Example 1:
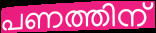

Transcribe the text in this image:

പണത്തിന്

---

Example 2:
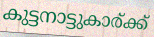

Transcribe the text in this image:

കുട്ടനാട്ടുകാര്ക്ക്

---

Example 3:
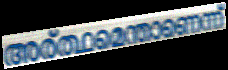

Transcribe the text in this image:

അര്ത്ഥമെന്താണെന്ന്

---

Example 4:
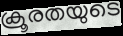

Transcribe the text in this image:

ക്രൂരതയുടെ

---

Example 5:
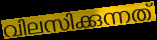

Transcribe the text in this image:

വിലസിക്കുന്നത്